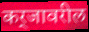
कर्जावरील